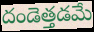
దండెత్తడమే